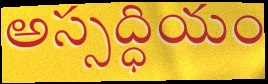
అస్సద్ధియం